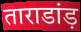
ताराडांड़